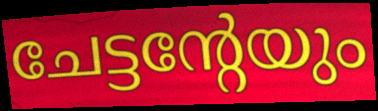
ചേട്ടന്റേയും